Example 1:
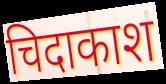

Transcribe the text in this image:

चिदाकाश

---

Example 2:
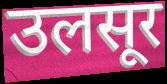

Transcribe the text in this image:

उलसूर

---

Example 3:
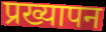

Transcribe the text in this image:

प्रख्यापन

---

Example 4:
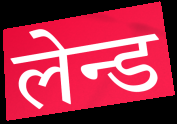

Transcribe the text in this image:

लेन्ड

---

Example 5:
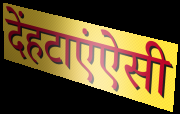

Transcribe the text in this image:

देंहटाएंऐसी